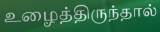
உழைத்திருந்தால்